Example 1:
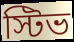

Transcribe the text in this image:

স্টিভ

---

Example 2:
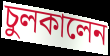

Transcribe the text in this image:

চুলকালেন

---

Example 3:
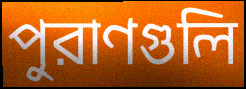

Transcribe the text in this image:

পুরাণগুলি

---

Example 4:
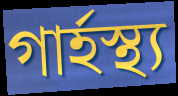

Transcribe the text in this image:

গার্হস্থ্য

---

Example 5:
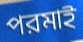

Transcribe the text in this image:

পরমাই